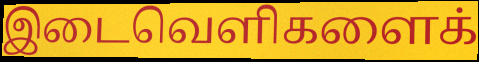
இடைவெளிகளைக்